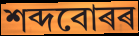
শব্দবোৰৰ